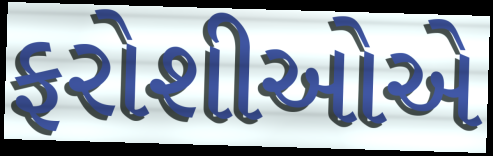
ફરોશીઓએ